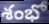
శంభో